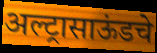
अल्ट्रासाऊंडचे